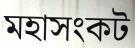
মহাসংকট